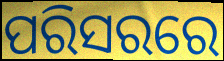
ପରିସରରେ